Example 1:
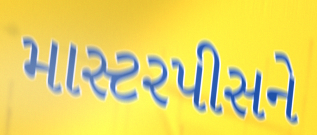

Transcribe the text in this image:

માસ્ટરપીસને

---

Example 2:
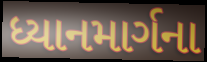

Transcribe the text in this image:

ધ્યાનમાર્ગના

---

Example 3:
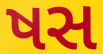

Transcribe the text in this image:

ષસ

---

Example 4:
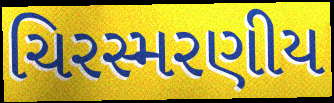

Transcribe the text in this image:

ચિરસ્મરણીય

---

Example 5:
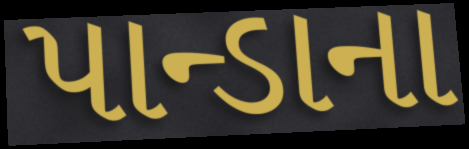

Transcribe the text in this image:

પાન્ડાના